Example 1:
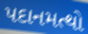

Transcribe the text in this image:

પદાનમત્થો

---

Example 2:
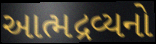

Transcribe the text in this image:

આત્મદ્રવ્યનો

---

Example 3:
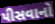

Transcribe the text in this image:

પીસવાનો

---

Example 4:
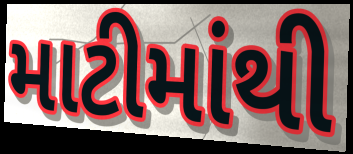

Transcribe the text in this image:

માટીમાંથી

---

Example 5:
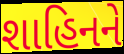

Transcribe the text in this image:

શાહિનને